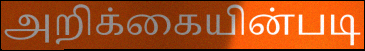
அறிக்கையின்படி